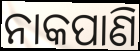
ନାକପାଣି